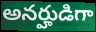
అనర్హుడిగా